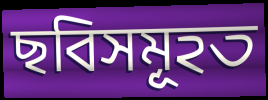
ছবিসমূহত